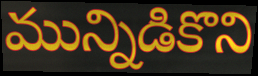
మున్నిడికొని